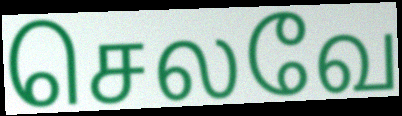
செலவே